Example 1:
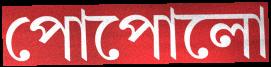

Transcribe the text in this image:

পোপোলো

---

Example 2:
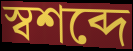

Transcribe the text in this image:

স্বশব্দে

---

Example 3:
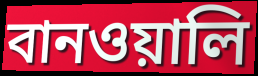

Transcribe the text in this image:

বানওয়ালি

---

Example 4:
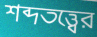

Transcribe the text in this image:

শব্দতত্ত্বের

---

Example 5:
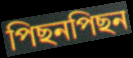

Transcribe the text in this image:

পিছনপিছন